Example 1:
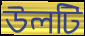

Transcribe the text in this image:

উলটি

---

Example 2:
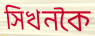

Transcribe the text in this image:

সিখনকৈ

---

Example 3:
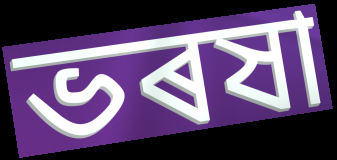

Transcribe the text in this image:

ভৰষা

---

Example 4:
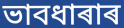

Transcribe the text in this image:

ভাবধাৰাৰ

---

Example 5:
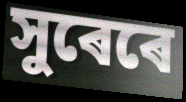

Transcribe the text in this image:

সুৰেৰে